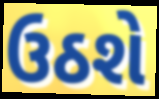
ઉઠશે